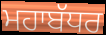
ਮਹਾਬੱਧਰ